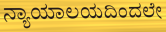
ನ್ಯಾಯಾಲಯದಿಂದಲೇ